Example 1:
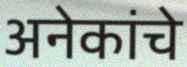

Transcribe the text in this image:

अनेकांचे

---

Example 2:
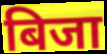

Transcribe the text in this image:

बिजा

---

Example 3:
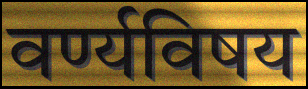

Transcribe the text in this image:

वर्ण्यविषय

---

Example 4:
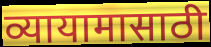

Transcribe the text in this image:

व्यायामासाठी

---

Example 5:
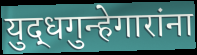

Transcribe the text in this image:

युद्धगुन्हेगारांना